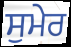
ਸੁਮੇਰ